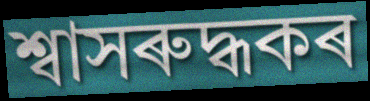
শ্বাসৰুদ্ধকৰ